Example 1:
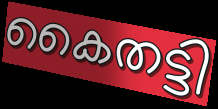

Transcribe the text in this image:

കൈതട്ടി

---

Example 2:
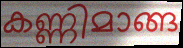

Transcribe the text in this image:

കണ്ണിമാങ്ങ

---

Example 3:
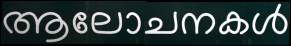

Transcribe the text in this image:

ആലോചനകൾ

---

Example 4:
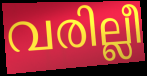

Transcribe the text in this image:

വരില്ലീ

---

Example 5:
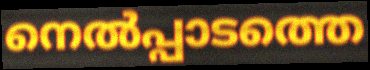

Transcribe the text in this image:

നെൽപ്പാടത്തെ